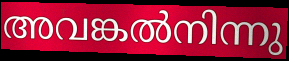
അവങ്കൽനിന്നു